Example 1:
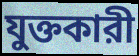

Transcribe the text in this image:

যুক্তকারী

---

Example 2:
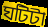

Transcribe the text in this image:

ঘটিটা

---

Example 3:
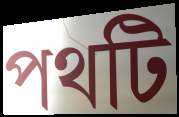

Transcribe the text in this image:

পথটি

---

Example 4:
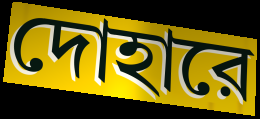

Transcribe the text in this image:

দোহারে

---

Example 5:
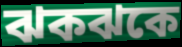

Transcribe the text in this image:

ঝকঝকে